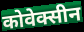
कोवेक्सीन